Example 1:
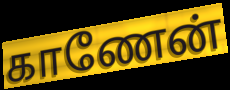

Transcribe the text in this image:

காணேன்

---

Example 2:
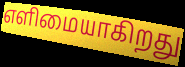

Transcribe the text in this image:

எளிமையாகிறது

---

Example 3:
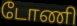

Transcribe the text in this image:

டோணி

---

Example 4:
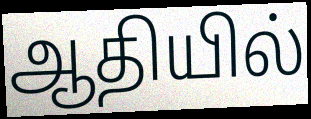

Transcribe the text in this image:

ஆதியில்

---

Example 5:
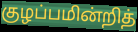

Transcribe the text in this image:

குழப்பமின்றித்